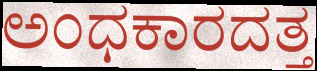
ಅಂಧಕಾರದತ್ತ